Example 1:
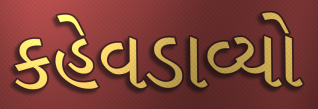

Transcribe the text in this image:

કહેવડાવ્યો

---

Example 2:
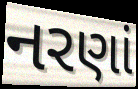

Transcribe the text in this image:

નરણાં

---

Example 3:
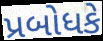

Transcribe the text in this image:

પ્રબોધકે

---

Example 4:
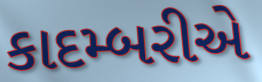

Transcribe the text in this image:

કાદમ્બરીએ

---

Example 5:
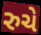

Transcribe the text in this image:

રુચે